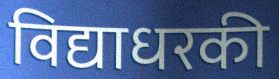
विद्याधरकी